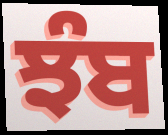
ਝੰਬ